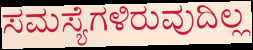
ಸಮಸ್ಯೆಗಳಿರುವುದಿಲ್ಲ